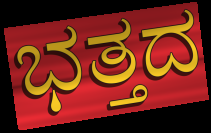
ಭತ್ತದ